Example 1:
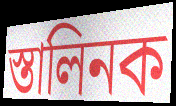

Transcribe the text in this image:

স্তালিনক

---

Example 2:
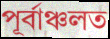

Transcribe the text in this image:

পূৰ্বাঞ্চলত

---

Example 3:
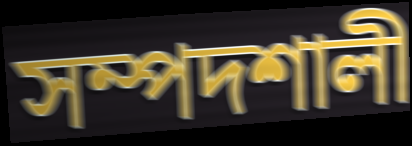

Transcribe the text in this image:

সম্পদশালী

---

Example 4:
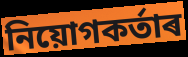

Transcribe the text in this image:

নিয়োগকৰ্তাৰ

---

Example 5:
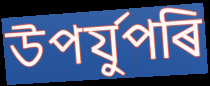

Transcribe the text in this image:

উপৰ্যুপৰি